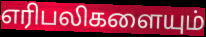
எரிபலிகளையும்